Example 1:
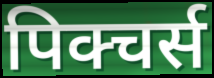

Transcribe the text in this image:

पिक्चर्स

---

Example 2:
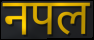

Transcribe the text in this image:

नपल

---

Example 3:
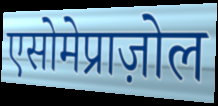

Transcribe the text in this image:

एसोमेप्राज़ोल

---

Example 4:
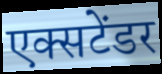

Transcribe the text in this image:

एक्सटेंडर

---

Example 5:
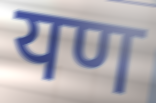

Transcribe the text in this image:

यण